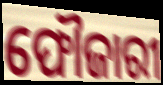
ଫୌଜାରୀ